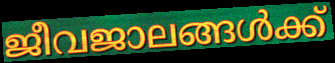
ജീവജാലങ്ങൾക്ക്